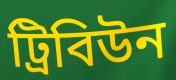
ট্রিবিউন